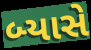
બ્યાસે